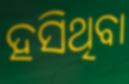
ହସିଥିବା